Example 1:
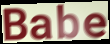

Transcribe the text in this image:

Babe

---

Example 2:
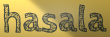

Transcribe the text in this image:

hasala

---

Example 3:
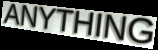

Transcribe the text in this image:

ANYTHING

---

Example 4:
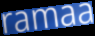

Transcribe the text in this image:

ramaa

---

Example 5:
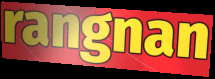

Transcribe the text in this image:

rangnan